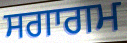
ਸਗਾਗਮ